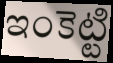
ఇంకెట్టి